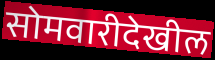
सोमवारीदेखील